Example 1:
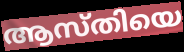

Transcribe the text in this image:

ആസ്തിയെ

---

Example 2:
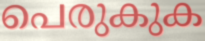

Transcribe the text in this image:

പെരുകുക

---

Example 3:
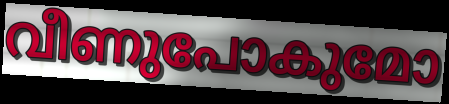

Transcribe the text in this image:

വീണുപോകുമോ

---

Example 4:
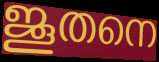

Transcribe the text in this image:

ജൂതനെ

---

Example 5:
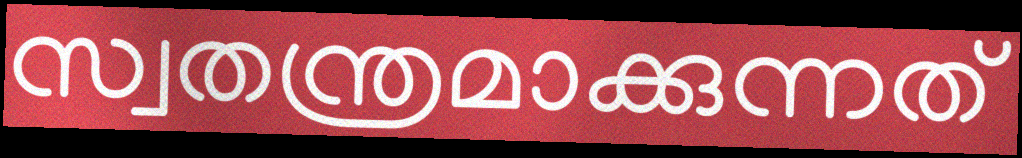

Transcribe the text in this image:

സ്വതന്ത്രമാക്കുന്നത്